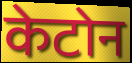
केटोन